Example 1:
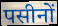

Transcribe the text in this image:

पसीनों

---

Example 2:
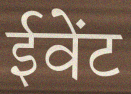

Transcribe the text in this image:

ईवेंट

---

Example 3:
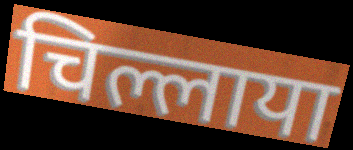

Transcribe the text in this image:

चिल्लाया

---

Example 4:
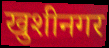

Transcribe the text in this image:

खुशीनगर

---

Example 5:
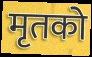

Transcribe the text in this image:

मृतको